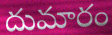
దుమారం